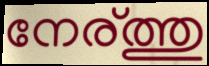
നേര്ത്തു